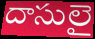
దాసులై